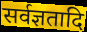
सर्वज्ञतादि